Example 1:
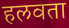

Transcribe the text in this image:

हलवता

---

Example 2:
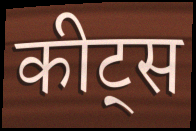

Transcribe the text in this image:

कीट्‌स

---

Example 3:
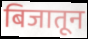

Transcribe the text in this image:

बिजातून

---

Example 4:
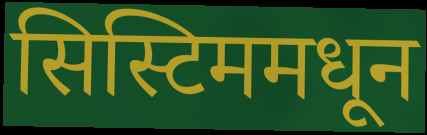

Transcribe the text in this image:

सिस्टिममधून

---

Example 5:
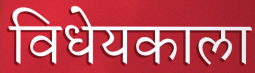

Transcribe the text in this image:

विधेयकाला